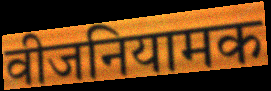
वीजनियामक